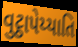
વુટ્ઠાપેય્યાતિ